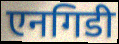
एनगिडी